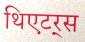
थिएटर्स